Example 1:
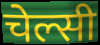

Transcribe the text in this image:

चेल्सी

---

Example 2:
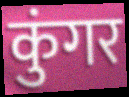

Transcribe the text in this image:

कुंगर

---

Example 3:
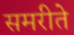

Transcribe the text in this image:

समरीते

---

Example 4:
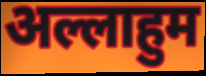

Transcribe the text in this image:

अल्लाहुम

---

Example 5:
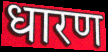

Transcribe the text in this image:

धारण